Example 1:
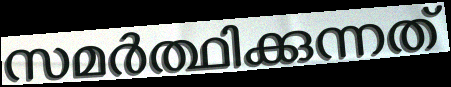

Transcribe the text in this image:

സമർത്ഥിക്കുന്നത്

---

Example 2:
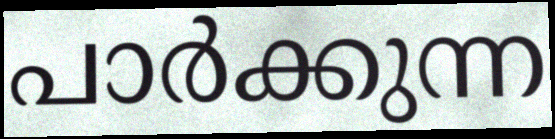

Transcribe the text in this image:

പാർക്കുന്ന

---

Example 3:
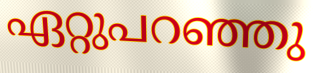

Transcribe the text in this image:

ഏറ്റുപറഞ്ഞു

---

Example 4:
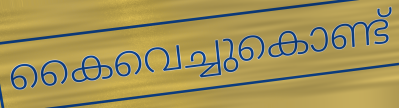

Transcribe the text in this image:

കൈവെച്ചുകൊണ്ട്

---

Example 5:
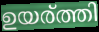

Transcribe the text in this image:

ഉയര്ത്തി